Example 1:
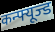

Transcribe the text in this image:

कन्फ्यूज्ड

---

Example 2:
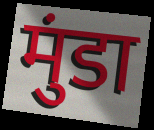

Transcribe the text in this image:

मुंडा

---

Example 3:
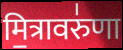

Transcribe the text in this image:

मि॒त्रावरु॑णा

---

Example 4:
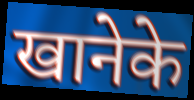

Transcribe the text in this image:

खानेके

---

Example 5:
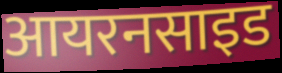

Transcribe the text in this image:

आयरनसाइड